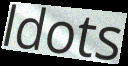
ldots